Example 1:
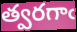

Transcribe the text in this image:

త్వరగాఁ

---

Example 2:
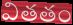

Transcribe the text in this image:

వితతం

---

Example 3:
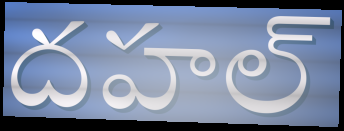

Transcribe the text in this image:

దహల్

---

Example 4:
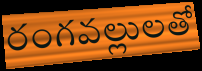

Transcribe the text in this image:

రంగవల్లులతో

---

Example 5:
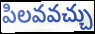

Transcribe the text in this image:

పిలవవచ్చు